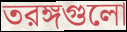
তরঙ্গগুলো